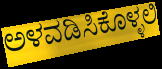
ಅಳವಡಿಸಿಕೊಳ್ಳಲಿ